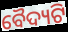
ବୈଦ୍ୟଟି